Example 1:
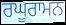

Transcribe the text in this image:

ਰਘੂਰਾਮਨ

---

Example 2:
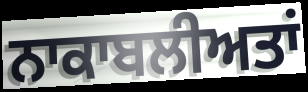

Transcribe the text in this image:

ਨਾਕਾਬਲੀਅਤਾਂ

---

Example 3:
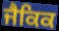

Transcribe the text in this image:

ਜੈਕਿਕ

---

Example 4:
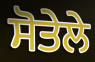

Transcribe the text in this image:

ਸੋਤੇਲੇ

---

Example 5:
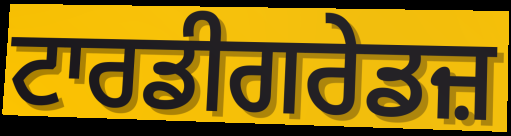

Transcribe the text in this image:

ਟਾਰਡੀਗਰੇਡਜ਼